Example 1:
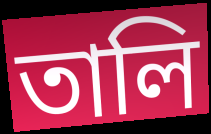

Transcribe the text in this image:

তালি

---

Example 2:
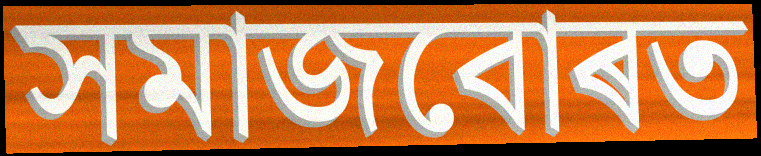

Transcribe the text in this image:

সমাজবোৰত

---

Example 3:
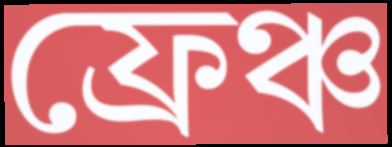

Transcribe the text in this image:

ফ্ৰেঞ্চ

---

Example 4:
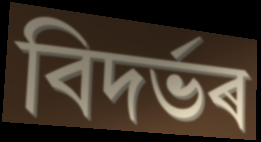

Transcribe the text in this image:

বিদৰ্ভৰ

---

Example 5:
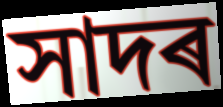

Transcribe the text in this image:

সাদৰ